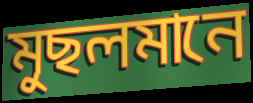
মুছলমানে